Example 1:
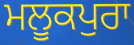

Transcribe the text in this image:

ਮਲੂਕਪੁਰਾ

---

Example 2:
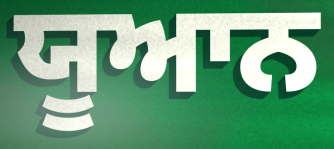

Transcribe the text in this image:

ਯੂਆਨ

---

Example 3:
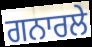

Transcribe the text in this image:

ਗਨਾਰਲੇ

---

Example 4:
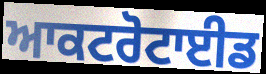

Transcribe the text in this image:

ਆਕਟਰੋਟਾਈਡ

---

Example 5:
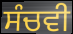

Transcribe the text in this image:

ਸੰਚਵੀ